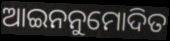
ଆଇନନୁମୋଦିତ